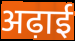
अढ़ाई